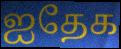
ஐதேக